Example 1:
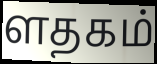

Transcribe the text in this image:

ளதகம்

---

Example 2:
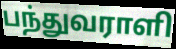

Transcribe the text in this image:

பந்துவராளி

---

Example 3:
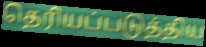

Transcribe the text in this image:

தெரியப்படுத்திய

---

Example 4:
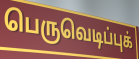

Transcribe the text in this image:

பெருவெடிப்புக்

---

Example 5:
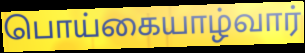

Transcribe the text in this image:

பொய்கையாழ்வார்